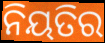
ନିୟତିର